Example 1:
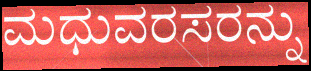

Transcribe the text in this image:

ಮಧುವರಸರನ್ನು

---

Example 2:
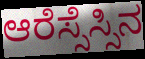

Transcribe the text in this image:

ಆರೆಸ್ಸೆಸ್ಸಿನ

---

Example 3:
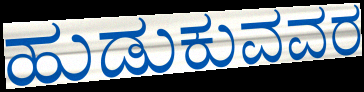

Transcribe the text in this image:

ಹುಡುಕುವವರ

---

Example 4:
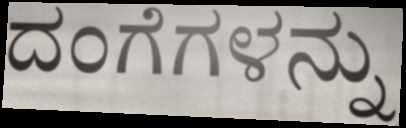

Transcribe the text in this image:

ದಂಗೆಗಳನ್ನು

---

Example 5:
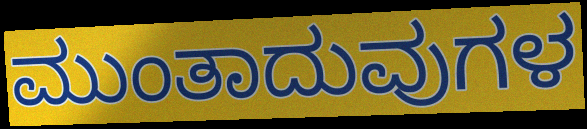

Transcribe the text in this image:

ಮುಂತಾದುವುಗಳ